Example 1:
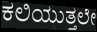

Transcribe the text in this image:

ಕಲಿಯುತ್ತಲೇ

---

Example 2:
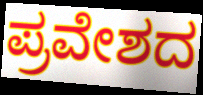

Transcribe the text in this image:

ಪ್ರವೇಶದ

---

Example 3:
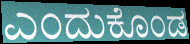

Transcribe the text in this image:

ಎಂದುಕೊಂಡ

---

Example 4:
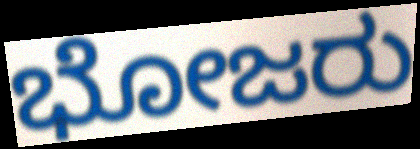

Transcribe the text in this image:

ಭೋಜರು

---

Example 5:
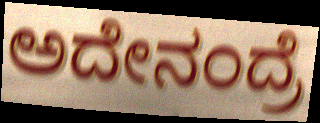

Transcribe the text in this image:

ಅದೇನಂದ್ರೆ